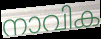
നാവിക